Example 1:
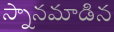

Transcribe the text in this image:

స్నానమాడిన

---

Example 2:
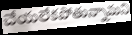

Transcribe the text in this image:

చేయలేకపోతున్నామని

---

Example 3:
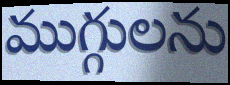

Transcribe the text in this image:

ముగ్గులను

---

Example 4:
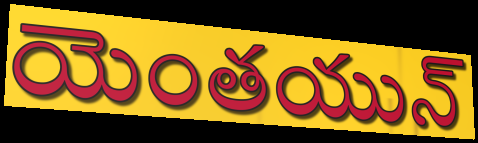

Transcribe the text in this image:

యెంతయున్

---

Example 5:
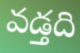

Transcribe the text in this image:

వడ్తది